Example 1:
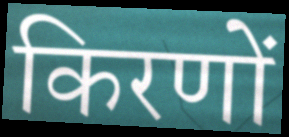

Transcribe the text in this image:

किरणों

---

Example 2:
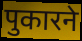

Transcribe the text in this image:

पुकारने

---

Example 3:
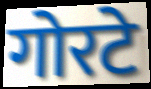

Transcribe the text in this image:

गोरटे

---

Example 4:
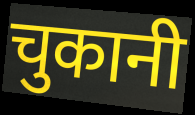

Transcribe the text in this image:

चुकानी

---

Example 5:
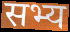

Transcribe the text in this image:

सभ्य